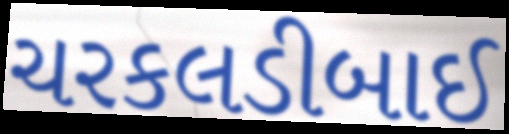
ચરકલડીબાઈ